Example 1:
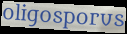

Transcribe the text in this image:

oligosporus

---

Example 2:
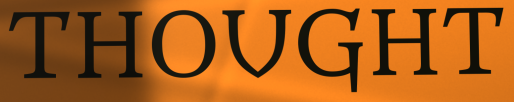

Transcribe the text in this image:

THOUGHT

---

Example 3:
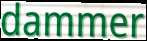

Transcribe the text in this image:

dammer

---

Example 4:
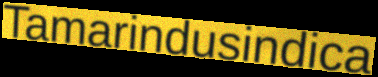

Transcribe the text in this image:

Tamarindusindica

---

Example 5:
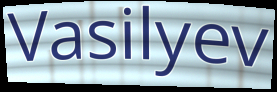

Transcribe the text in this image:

Vasilyev